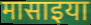
मासाइया